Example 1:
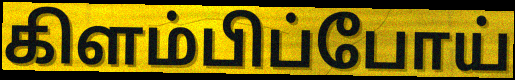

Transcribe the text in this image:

கிளம்பிப்போய்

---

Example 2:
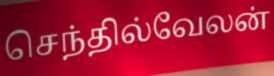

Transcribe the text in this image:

செந்தில்வேலன்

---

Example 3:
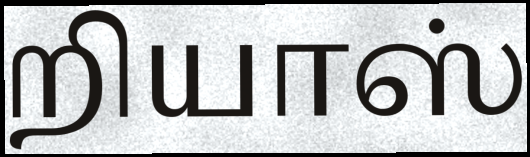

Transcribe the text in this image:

றியாஸ்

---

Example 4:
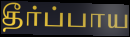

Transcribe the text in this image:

தீர்ப்பாய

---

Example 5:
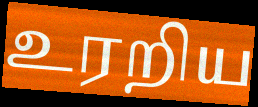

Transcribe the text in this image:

உரறிய